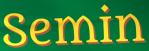
Semin